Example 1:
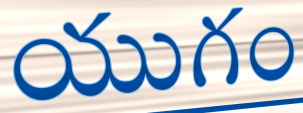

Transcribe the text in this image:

యుగం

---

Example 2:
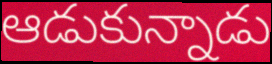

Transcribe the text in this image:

ఆడుకున్నాడు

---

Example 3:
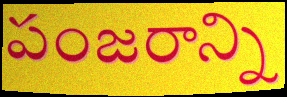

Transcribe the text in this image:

పంజరాన్ని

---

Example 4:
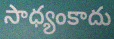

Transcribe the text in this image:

సాధ్యంకాదు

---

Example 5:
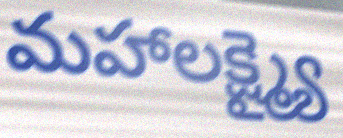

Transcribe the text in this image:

మహాలక్ష్మ్యై